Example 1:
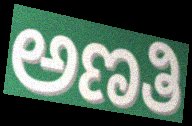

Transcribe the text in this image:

ಅಣತಿ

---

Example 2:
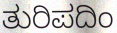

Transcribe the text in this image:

ತುರಿಪದಿಂ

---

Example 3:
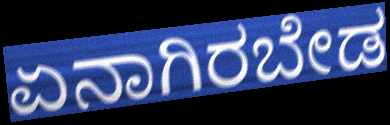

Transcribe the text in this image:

ಏನಾಗಿರಬೇಡ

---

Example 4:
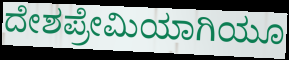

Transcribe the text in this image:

ದೇಶಪ್ರೇಮಿಯಾಗಿಯೂ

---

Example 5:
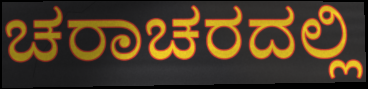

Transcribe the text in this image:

ಚರಾಚರದಲ್ಲಿ